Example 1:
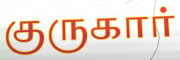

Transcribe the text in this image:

குருகார்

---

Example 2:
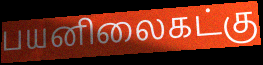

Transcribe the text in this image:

பயனிலைகட்கு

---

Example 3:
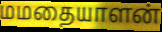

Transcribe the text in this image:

மமதையாளன்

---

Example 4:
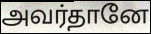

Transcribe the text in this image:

அவர்தானே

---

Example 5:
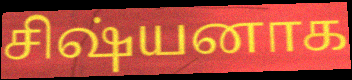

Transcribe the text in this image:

சிஷ்யனாக